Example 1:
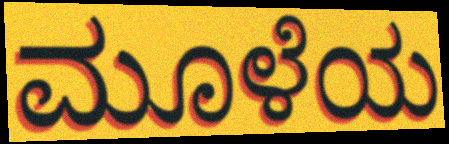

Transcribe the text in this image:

ಮೂಳೆಯ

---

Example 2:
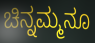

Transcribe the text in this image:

ಚಿನ್ನಮ್ಮನೂ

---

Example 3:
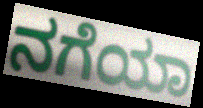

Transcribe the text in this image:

ನಗೆಯಾ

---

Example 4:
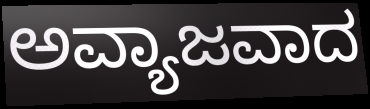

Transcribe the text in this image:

ಅವ್ಯಾಜವಾದ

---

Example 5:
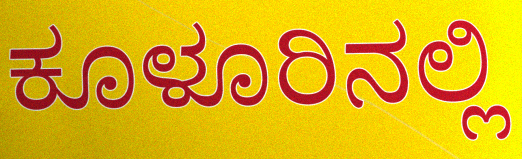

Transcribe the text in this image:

ಕೂಳೂರಿನಲ್ಲಿ